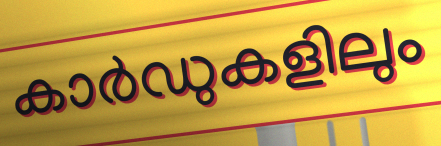
കാർഡുകളിലും